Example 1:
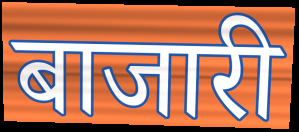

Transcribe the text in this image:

बाजारी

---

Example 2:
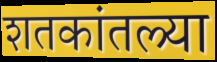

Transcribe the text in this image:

शतकांतल्या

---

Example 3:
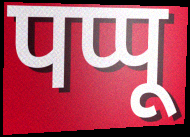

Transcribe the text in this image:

पप्पू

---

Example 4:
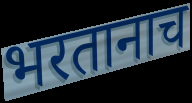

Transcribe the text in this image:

भरतानाच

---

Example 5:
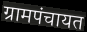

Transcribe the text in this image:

ग्रामपंचायत